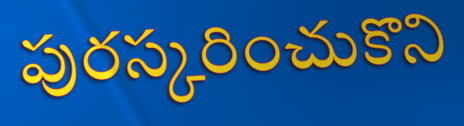
పురస్కరించుకొని